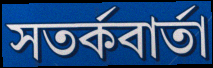
সতর্কবার্তা